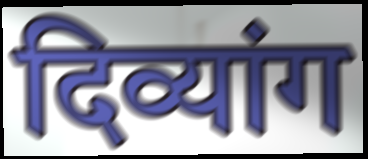
दिव्यांग